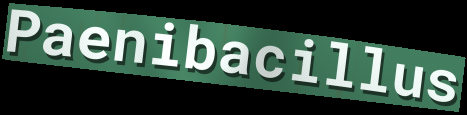
Paenibacillus